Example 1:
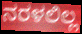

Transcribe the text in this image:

ನರಳಲಿಲ್ಲ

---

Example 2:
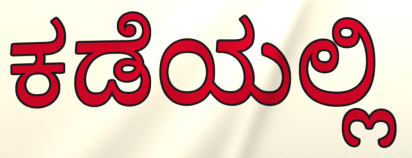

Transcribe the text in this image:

ಕಡೆಯಲ್ಲಿ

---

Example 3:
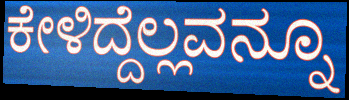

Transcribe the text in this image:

ಕೇಳಿದ್ದೆಲ್ಲವನ್ನೂ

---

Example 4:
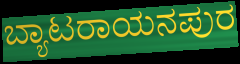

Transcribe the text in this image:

ಬ್ಯಾಟರಾಯನಪುರ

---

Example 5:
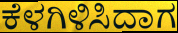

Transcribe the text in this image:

ಕೆಳಗಿಳಿಸಿದಾಗ